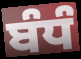
ਬੰਧੰ